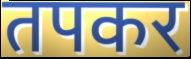
तपकर